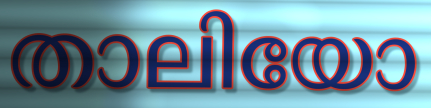
താലിയോ